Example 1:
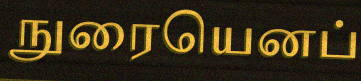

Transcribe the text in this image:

நுரையெனப்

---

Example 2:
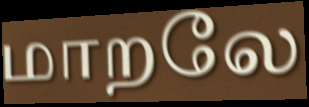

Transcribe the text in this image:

மாறலே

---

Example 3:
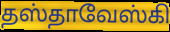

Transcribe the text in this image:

தஸ்தாவேஸ்கி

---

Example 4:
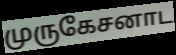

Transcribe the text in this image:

முருகேசனாட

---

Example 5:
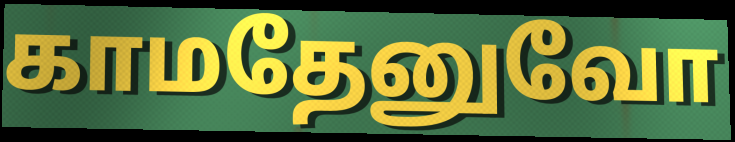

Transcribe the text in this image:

காமதேனுவோ